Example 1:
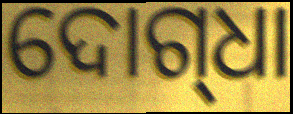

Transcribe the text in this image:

ଦୋଗ୍‌ଧା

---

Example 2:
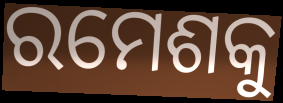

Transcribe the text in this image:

ରମେଶକୁ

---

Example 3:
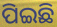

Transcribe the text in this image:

ପିଇଛି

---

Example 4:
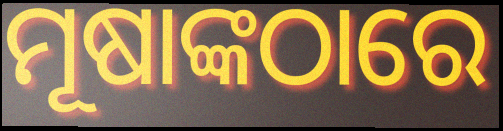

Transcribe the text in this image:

ମୂଷାଙ୍କଠାରେ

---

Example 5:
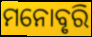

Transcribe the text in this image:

ମନୋବୃରି